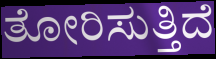
ತೋರಿಸುತ್ತಿದೆ